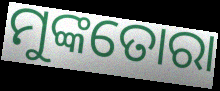
ମୁଙ୍କତୋରା